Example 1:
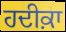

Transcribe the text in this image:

ਹਦੀਕ਼ਾ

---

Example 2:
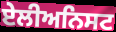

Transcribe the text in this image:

ਏਲੀਅਨਿਸਟ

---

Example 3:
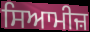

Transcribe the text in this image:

ਸਿਆਮੀਜ਼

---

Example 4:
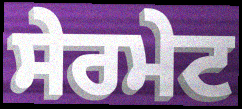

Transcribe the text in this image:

ਸੇਰਮੇਟ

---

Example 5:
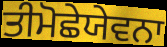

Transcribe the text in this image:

ਤੀਮੋਛੇਯੇਵਨਾ